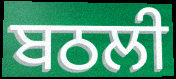
ਬਠਲੀ